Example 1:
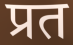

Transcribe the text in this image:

प्रत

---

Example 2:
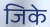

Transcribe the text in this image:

जिके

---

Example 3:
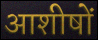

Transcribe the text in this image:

आशीषों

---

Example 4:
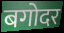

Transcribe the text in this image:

बगोदर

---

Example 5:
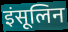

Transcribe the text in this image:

इंसूलिन